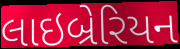
લાઇબ્રેરિયન